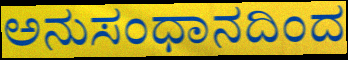
ಅನುಸಂಧಾನದಿಂದ